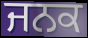
ਜਨਕ